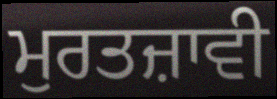
ਮੁਰਤਜ਼ਾਵੀ